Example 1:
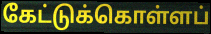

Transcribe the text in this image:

கேட்டுக்கொள்ளப்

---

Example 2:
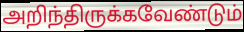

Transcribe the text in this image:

அறிந்திருக்கவேண்டும்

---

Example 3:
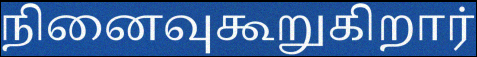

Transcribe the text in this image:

நினைவுகூறுகிறார்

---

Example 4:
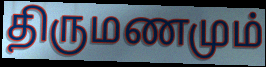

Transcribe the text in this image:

திருமணமும்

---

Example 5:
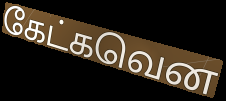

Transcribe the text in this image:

கேட்கவென